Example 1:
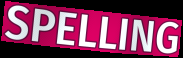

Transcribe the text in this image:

SPELLING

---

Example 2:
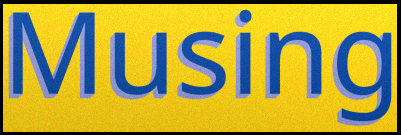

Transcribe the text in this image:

Musing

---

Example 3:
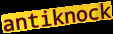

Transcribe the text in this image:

antiknock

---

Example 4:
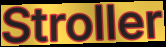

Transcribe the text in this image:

Stroller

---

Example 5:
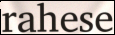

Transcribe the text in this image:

rahese